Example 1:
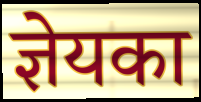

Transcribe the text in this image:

ज्ञेयका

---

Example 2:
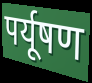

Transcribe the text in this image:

पर्यूषण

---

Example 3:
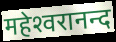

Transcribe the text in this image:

महेश्वरानन्द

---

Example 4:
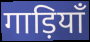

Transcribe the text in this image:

गाड़ियाँ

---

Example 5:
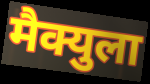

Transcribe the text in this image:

मैक्युला